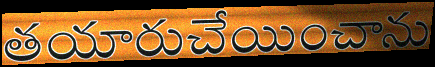
తయారుచేయించాను